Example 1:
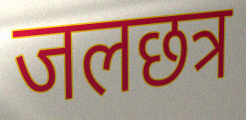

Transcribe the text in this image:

जलछत्र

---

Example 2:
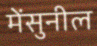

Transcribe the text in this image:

मेंसुनील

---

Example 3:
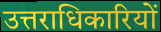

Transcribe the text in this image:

उत्तराधिकारियों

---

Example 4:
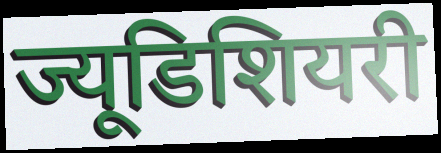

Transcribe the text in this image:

ज्यूडिशियरी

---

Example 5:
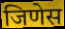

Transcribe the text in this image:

जिणेस